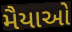
મૈયાઓ